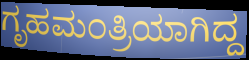
ಗೃಹಮಂತ್ರಿಯಾಗಿದ್ದ